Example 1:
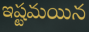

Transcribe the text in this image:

ఇష్టమయిన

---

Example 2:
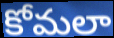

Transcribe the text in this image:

కోమలా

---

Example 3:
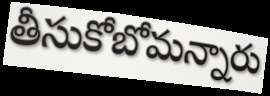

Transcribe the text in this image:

తీసుకోబోమన్నారు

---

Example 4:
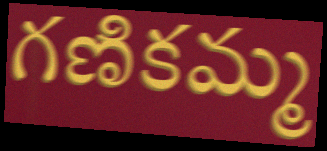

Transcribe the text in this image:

గణికమ్మ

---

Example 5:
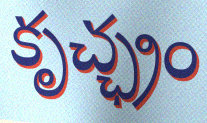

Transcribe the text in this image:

కృచ్ఛ్రం